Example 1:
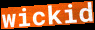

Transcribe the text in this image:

wickid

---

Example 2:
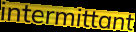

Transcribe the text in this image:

intermittant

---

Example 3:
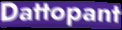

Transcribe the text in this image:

Dattopant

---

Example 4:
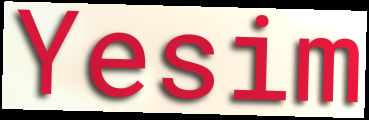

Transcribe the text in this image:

Yesim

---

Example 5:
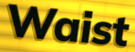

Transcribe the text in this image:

Waist